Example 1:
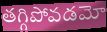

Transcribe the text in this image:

తగ్గిపోవడమో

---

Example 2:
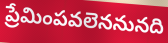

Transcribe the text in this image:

ప్రేమింపవలెననునది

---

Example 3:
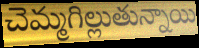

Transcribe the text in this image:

చెమ్మగిల్లుతున్నాయి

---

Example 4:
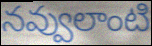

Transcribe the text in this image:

నవ్వులాంటి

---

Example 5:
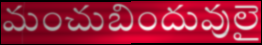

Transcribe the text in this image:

మంచుబిందువులై